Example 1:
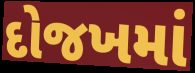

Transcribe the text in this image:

દોજખમાં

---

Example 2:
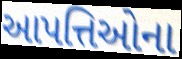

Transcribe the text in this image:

આપત્તિઓના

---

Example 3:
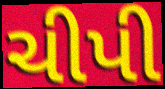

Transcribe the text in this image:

ચીપી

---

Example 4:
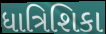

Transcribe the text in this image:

ધાત્રિશિકા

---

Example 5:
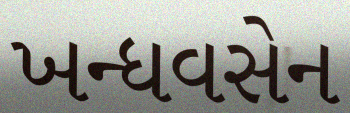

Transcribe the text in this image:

ખન્ધવસેન